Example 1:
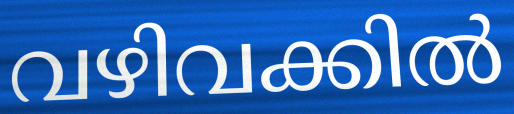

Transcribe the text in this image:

വഴിവക്കിൽ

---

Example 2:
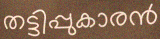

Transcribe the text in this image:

തട്ടിപ്പുകാരൻ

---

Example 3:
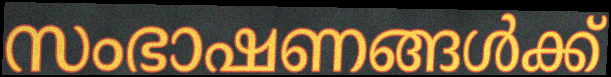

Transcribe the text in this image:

സംഭാഷണങ്ങൾക്ക്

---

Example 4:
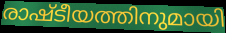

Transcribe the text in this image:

രാഷ്ടീയത്തിനുമായി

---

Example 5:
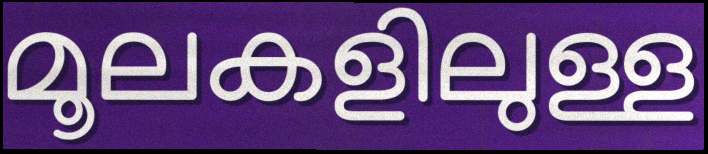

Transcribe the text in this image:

മൂലകളിലുള്ള